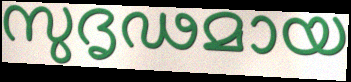
സുദൃഢമായ